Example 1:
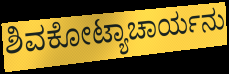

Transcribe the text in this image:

ಶಿವಕೋಟ್ಯಾಚಾರ್ಯನು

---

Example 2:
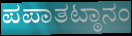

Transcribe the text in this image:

ಪಪಾತಟ್ಠಾನಂ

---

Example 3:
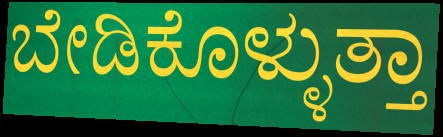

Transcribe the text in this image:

ಬೇಡಿಕೊಳ್ಳುತ್ತಾ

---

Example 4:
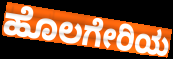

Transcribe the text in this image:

ಹೊಲಗೇರಿಯ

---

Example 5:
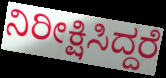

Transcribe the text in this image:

ನಿರೀಕ್ಷಿಸಿದ್ದರೆ